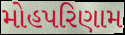
મોહપરિણામ